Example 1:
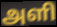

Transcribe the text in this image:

அளி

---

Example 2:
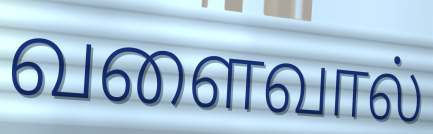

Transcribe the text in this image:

வளைவால்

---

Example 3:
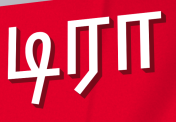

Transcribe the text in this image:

டிரா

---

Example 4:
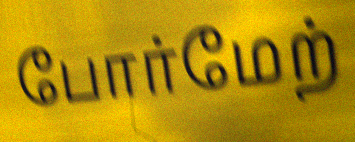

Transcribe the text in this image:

போர்மேற்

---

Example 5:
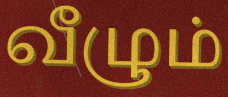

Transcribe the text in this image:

வீழும்